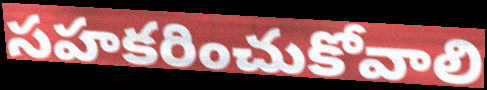
సహకరించుకోవాలి